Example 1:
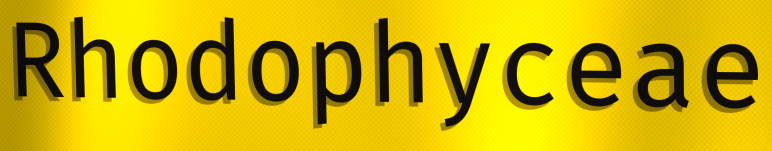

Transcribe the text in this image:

Rhodophyceae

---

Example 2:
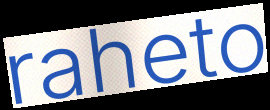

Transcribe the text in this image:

raheto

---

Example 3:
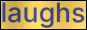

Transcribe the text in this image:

laughs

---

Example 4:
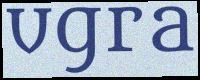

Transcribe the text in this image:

ugra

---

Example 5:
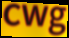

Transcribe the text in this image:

cwg